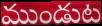
ముండుట